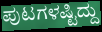
ಪುಟಗಳಷ್ಟಿದ್ದು